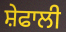
ਸ਼ੇਫਾਲੀ